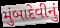
મુંબાદેવીનું